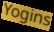
Yogins